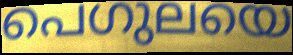
പെഗുലയെ